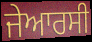
ਜੇਆਰਸੀ